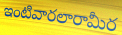
ఇంటివారలారామీర